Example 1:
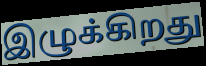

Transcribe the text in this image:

இழுக்கிறது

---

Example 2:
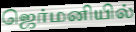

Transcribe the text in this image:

ஜெர்மனியில்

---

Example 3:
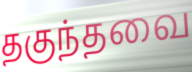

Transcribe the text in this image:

தகுந்தவை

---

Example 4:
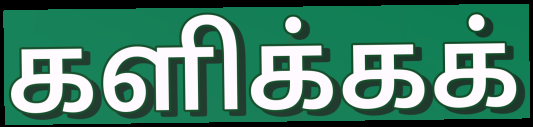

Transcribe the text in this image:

களிக்கக்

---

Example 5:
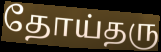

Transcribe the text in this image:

தோய்தரு